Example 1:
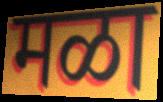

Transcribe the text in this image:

मळा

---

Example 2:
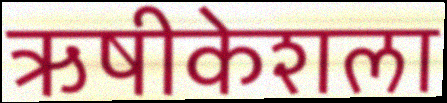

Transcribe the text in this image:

ऋषीकेशला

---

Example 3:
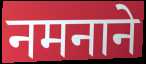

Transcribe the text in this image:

नमनाने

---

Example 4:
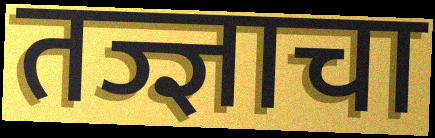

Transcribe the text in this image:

तज्ज्ञाचा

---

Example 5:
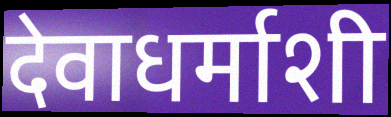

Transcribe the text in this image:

देवाधर्माशी